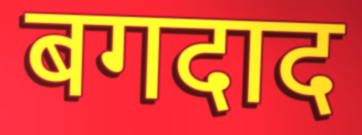
बगदाद